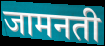
जामनती